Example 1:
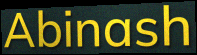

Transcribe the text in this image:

Abinash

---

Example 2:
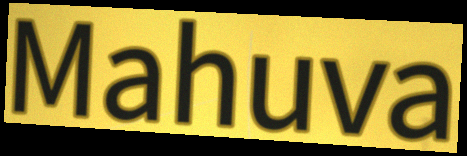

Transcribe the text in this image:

Mahuva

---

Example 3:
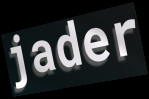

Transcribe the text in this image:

jader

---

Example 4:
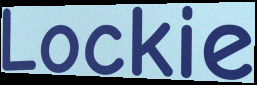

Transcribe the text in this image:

Lockie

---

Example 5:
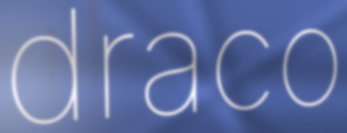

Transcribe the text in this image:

draco